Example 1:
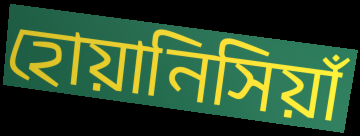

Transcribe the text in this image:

হোয়ানিসিয়াঁ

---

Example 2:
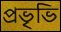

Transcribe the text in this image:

প্রভৃভি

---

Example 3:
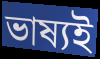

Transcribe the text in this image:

ভাষ্যই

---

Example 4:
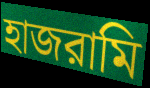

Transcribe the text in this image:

হাজরামি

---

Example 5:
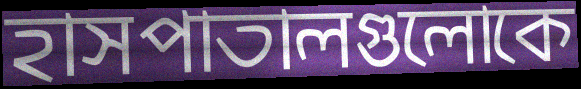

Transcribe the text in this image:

হাসপাতালগুলোকে